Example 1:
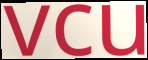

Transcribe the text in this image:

vcu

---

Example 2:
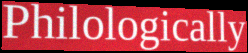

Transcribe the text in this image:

Philologically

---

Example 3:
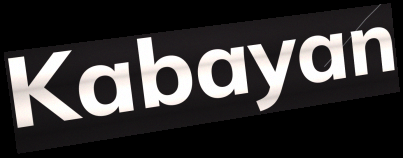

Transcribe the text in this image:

Kabayan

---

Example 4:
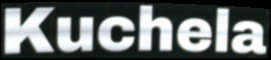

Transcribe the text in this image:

Kuchela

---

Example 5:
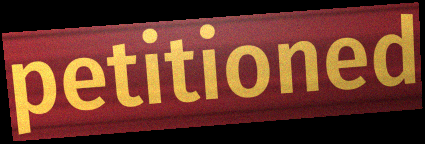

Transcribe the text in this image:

petitioned